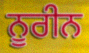
ਨੂਰੀਨ